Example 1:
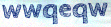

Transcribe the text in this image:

wwqeqw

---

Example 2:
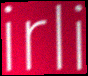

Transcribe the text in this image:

irli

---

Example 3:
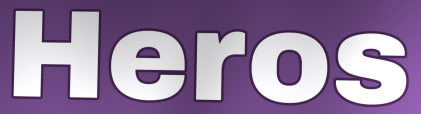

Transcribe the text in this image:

Heros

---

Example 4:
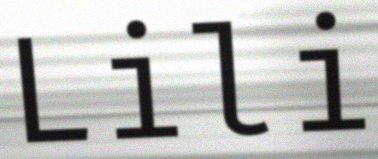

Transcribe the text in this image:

Lili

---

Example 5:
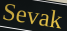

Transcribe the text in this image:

Sevak